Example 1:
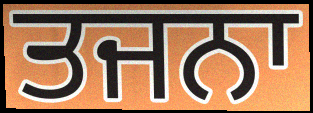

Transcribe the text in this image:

ਤਜਨਾ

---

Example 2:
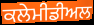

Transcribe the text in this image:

ਕਲੇਮੀਡੀਅਲ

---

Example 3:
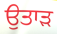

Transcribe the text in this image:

ਉਤਾਡ਼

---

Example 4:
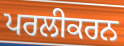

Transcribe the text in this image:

ਪਰਲੀਕਰਨ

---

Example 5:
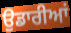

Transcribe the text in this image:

ਉਡਾਰੀਆਂ